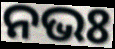
ନଭଃ